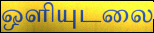
ஒளியுடலை